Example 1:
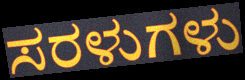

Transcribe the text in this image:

ಸರಳುಗಳು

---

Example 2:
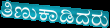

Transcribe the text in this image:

ತಿಣುಕಾಡಿದರು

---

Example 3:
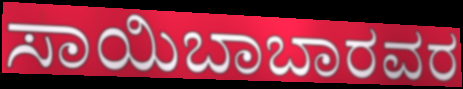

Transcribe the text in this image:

ಸಾಯಿಬಾಬಾರವರ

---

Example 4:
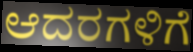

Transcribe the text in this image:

ಆದರಗಳಿಗೆ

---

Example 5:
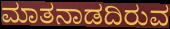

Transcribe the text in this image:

ಮಾತನಾಡದಿರುವ